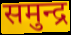
समुन्द्र